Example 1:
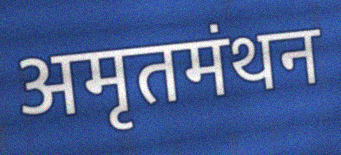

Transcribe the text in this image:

अमृतमंथन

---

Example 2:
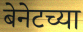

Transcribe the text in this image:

बेनेटच्या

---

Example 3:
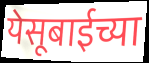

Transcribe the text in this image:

येसूबाईच्या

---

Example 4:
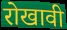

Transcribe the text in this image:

रोखावी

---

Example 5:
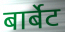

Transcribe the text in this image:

बार्बेट